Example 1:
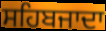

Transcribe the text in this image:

ਸਹਿਬਜਾਦਾ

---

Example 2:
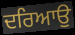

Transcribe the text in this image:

ਦਰਿਆਉ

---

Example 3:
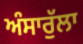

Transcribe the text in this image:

ਅੰਸਾਰੁੱਲਾ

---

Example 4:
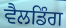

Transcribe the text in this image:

ਵੈਲਡਿੰਗ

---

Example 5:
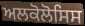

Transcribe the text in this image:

ਅਲਕੋਲੋਸਿਸ